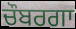
ਚੌਬਰਗਾ